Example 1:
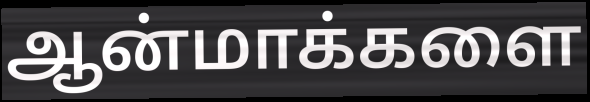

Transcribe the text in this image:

ஆன்மாக்களை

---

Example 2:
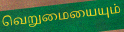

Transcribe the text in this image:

வெறுமையையும்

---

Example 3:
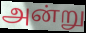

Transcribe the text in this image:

அன்று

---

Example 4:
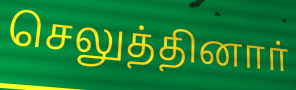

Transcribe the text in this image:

செலுத்தினார்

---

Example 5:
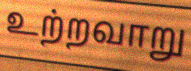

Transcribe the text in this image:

உற்றவாறு